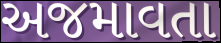
અજમાવતા